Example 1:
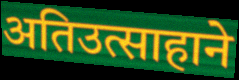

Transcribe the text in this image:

अतिउत्साहाने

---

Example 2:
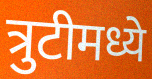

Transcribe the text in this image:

त्रुटीमध्ये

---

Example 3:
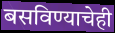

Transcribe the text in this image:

बसविण्याचेही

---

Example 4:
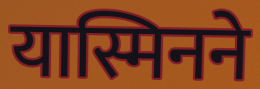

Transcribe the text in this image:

यास्मिनने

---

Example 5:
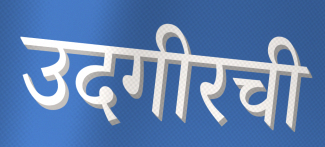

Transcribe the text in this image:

उदगीरची